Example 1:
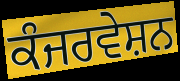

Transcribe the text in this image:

ਕੰਜਰਵੇਸ਼ਨ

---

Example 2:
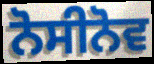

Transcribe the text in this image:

ਨੋਸੀਨੋਵ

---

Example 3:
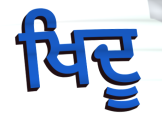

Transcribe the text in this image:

ਖਿਦੂ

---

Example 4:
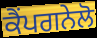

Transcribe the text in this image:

ਕੈਂਪਗਨੇਲੋ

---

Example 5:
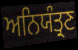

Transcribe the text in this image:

ਅਨਿਯੰਤ੍ਰਣ